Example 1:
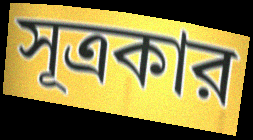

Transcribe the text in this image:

সূত্রকার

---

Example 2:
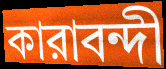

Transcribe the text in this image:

কারাবন্দী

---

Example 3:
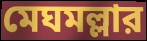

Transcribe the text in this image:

মেঘমল্লার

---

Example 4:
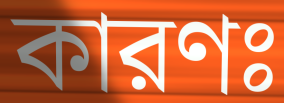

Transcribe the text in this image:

কারণঃ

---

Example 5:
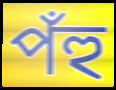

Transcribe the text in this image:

পঁহু